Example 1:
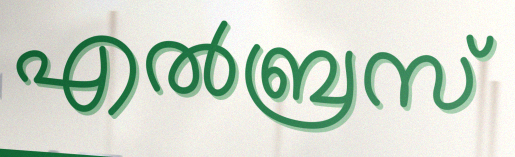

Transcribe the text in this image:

എൽബ്രസ്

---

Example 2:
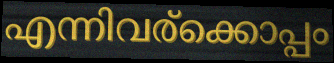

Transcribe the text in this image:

എന്നിവര്ക്കൊപ്പം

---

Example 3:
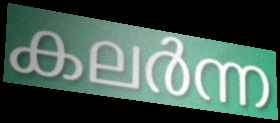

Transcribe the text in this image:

കലർന്ന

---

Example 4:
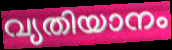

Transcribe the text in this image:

വ്യതിയാനം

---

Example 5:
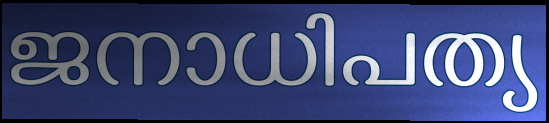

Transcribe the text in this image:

ജനാധിപത്യ